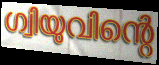
ഗ്വിയുവിന്റെ